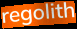
regolith